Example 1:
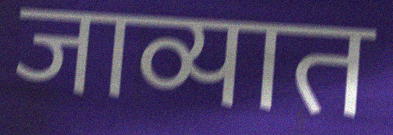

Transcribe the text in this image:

जाव्यात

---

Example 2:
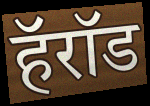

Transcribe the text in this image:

हॅरॉड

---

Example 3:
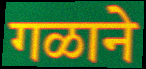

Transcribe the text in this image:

गळाने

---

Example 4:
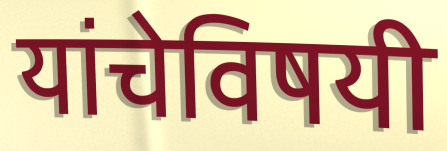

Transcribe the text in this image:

यांचेविषयी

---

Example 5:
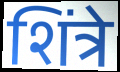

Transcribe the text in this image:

शिंत्रे